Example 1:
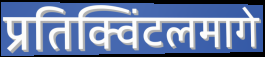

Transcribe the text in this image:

प्रतिक्विंटलमागे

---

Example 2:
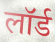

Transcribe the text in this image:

लॉर्ड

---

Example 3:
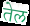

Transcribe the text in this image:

तेल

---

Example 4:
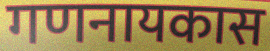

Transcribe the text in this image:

गणनायकास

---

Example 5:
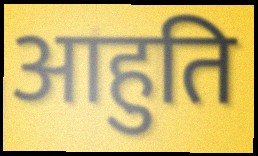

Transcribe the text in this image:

आहुति